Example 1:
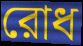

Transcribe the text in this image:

রোধ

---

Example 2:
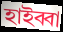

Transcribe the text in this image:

হাইব্বা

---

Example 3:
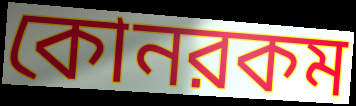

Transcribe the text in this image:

কোনরকম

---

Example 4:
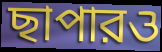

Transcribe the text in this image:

ছাপারও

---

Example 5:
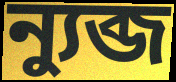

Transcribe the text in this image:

ন্যুব্জ